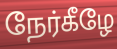
நேர்கீழே